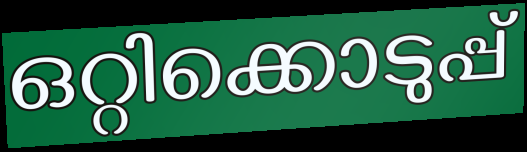
ഒറ്റിക്കൊടുപ്പ്